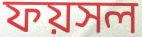
ফয়সল